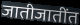
जातीजातींत